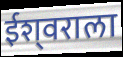
ईश्वराला